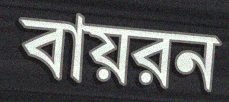
বায়রন